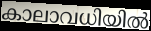
കാലാവധിയിൽ